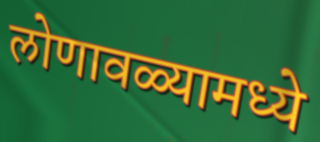
लोणावळ्यामध्ये